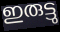
ഇരുട്ടു